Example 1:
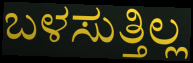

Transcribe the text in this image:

ಬಳಸುತ್ತಿಲ್ಲ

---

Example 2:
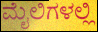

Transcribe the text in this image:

ಮೈಲಿಗಳಲ್ಲಿ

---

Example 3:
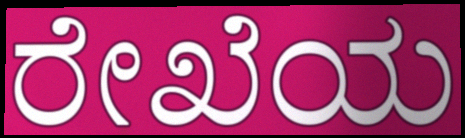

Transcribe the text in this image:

ರೇಖೆಯ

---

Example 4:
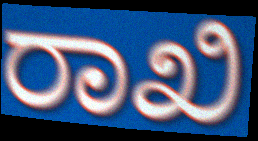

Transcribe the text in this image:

ರಾಖಿ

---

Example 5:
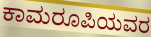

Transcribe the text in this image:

ಕಾಮರೂಪಿಯವರ